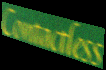
Contactless